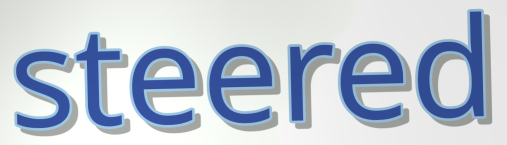
steered